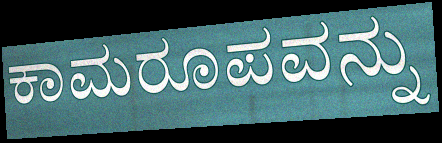
ಕಾಮರೂಪವನ್ನು